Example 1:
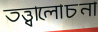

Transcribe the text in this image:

তত্ত্বালোচনা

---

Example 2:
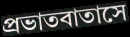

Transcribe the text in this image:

প্রভাতবাতাসে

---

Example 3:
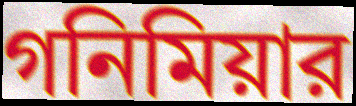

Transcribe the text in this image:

গনিমিয়ার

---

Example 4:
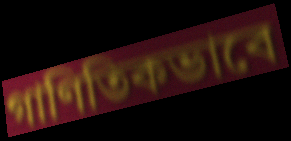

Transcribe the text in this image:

গাণিতিকভাবে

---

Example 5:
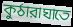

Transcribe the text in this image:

কুঠারাঘাতে